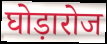
घोड़ारोज